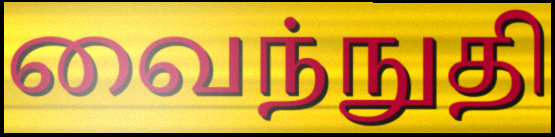
வைந்நுதி